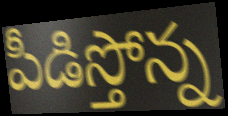
పీడిస్తోన్న